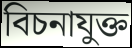
বিচনাযুক্ত